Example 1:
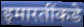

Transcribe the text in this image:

इमारतींकडे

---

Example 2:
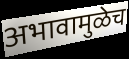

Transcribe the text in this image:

अभावामुळेच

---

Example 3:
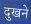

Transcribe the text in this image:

दुखने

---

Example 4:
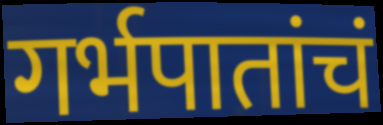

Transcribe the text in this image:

गर्भपातांचं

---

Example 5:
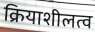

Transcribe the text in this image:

क्रियाशीलत्व